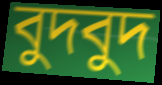
বুদবুদ